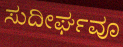
ಸುದೀರ್ಘವೂ